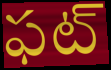
ఫట్